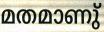
മതമാണു്